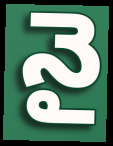
నై